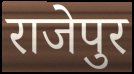
राजेपुर